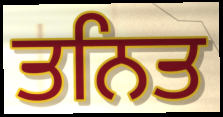
ਤਨਿਤ